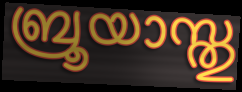
ബ്രൂയാസ്തു